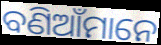
ବଣିଆଁମାନେ